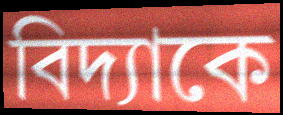
বিদ্যাকে